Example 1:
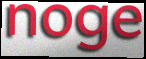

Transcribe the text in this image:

noge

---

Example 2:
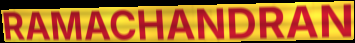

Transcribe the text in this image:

RAMACHANDRAN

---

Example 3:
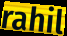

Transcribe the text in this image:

rahil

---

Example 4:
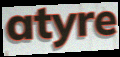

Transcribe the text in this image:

atyre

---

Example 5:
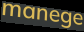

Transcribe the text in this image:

manege